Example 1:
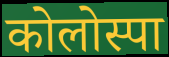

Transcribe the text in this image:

कोलोस्पा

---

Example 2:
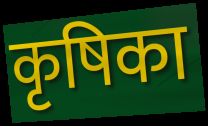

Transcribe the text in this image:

कृषिका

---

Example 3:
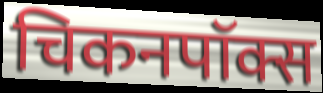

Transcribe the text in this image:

चिकनपॉक्स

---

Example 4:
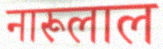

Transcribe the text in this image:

नारूलाल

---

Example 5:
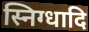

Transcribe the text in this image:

स्निग्धादि